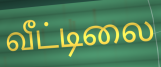
வீட்டிலை